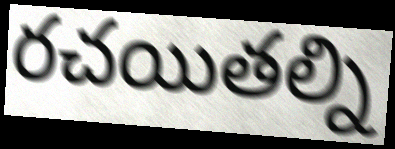
రచయితల్ని